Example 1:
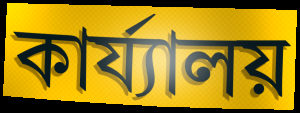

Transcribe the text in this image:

কাৰ্য্যালয়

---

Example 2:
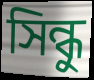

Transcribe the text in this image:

সিন্ধু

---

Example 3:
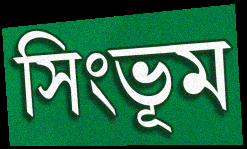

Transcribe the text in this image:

সিংভূম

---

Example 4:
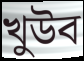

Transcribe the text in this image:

খুউব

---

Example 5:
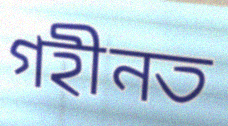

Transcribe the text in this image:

গহীনত